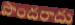
పొందరాదు